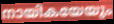
നായികയേയും